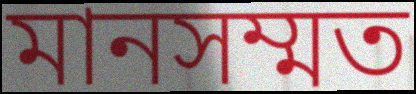
মানসম্মত